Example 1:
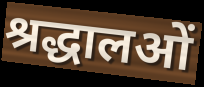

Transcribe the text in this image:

श्रद्धालओं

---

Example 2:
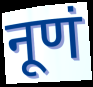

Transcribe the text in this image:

नूणं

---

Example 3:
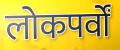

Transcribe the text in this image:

लोकपर्वों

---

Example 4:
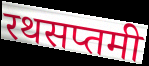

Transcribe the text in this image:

रथसप्तमी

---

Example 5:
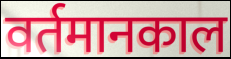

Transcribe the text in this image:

वर्तमानकाल